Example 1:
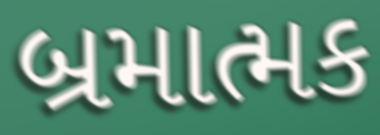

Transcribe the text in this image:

બ્રમાત્મક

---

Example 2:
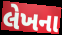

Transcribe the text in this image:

લેખના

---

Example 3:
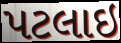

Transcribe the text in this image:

પટલાઇ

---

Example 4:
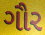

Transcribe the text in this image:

ગૌર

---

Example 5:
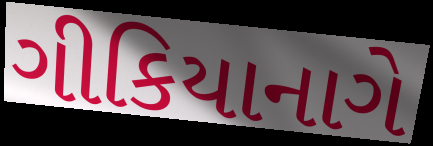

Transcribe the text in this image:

ગીકિયાનાગે